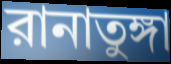
রানাতুঙ্গা